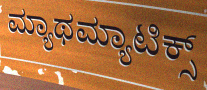
ಮ್ಯಾಥಮ್ಯಾಟಿಕ್ಸ್